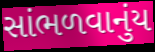
સાંભળવાનુંય